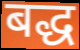
बद्ध